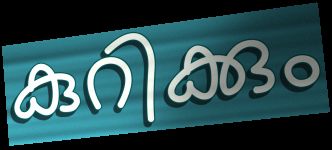
കുറിക്കും